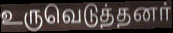
உருவெடுத்தனர்